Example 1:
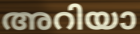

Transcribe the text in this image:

അറിയാ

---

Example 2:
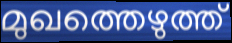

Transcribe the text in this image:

മുഖത്തെഴുത്ത്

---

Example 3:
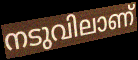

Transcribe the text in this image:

നടുവിലാണ്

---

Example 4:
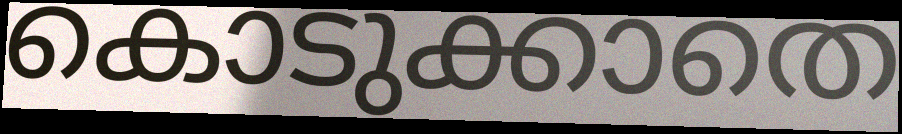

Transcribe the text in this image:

കൊടുക്കാതെ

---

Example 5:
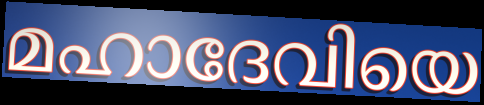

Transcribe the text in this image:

മഹാദേവിയെ